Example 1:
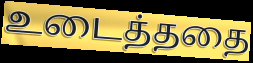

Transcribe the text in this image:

உடைத்ததை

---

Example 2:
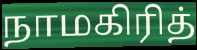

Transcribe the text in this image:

நாமகிரித்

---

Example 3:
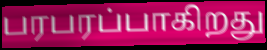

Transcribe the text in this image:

பரபரப்பாகிறது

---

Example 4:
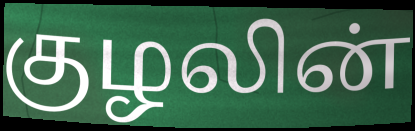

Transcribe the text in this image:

குழலின்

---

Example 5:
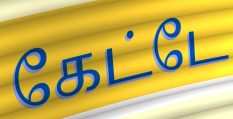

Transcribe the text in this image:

கேட்டே